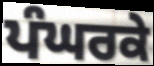
ਪੰਘਰਕੇ